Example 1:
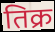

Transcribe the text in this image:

तिक्र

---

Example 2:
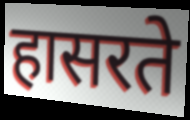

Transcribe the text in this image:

हासरते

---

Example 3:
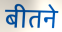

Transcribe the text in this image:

बीतने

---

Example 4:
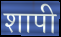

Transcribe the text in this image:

शापी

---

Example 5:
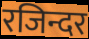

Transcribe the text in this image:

रजिन्दर